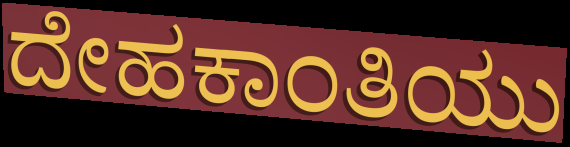
ದೇಹಕಾಂತಿಯು